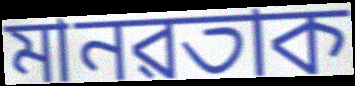
মানৱতাক